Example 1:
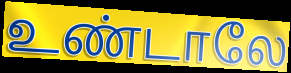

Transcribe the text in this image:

உண்டாலே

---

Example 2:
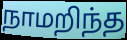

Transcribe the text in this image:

நாமறிந்த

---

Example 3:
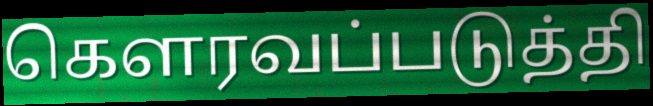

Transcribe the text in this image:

கெளரவப்படுத்தி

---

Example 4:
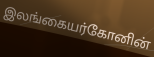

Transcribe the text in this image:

இலங்கையர்கோனின்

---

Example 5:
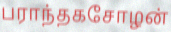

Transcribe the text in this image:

பராந்தகசோழன்